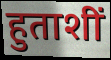
हुताशीं